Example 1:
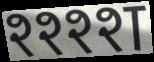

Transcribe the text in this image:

श्श्श्श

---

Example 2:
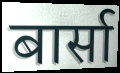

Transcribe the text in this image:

बार्सा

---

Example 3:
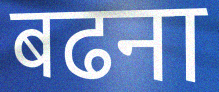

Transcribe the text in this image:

बढना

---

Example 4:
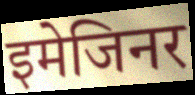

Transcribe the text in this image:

इमेजिनर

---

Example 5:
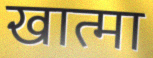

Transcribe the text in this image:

खात्मा